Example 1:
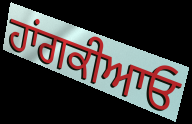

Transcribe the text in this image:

ਹਾਂਗਕੀਆਓ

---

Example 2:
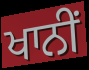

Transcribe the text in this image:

ਖਾਨੀਂ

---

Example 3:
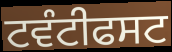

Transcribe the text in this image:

ਟਵੰਟੀਫਸਟ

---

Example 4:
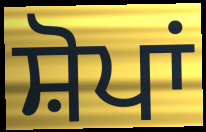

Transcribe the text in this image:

ਸ਼ੋਪਾਂ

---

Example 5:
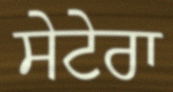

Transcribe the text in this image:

ਸੇਟੇਰਾ